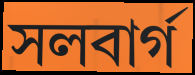
সলবার্গ